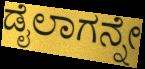
ಡೈಲಾಗನ್ನೇ